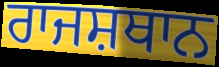
ਰਾਜਸ਼ਥਾਨ